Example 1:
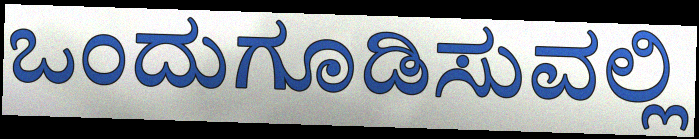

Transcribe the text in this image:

ಒಂದುಗೂಡಿಸುವಲ್ಲಿ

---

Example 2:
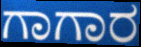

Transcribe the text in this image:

ಗಾಗಾರ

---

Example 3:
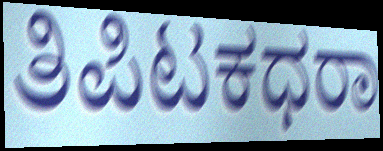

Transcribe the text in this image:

ತಿಪಿಟಕಧರಾ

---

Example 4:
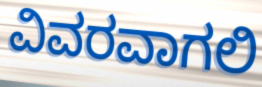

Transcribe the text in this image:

ವಿವರವಾಗಲಿ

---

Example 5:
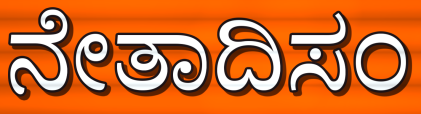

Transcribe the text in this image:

ನೇತಾದಿಸಂ